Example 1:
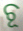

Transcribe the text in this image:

ଚୂ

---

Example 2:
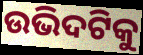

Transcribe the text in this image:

ଉଭିଦଟିକୁ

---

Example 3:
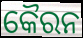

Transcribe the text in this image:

କୈରନ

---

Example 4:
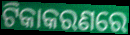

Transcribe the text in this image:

ଟିକାକରଣରେ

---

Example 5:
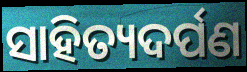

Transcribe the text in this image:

ସାହିତ୍ୟଦର୍ପଣ